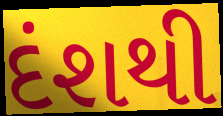
દંશથી